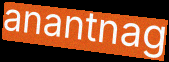
anantnag